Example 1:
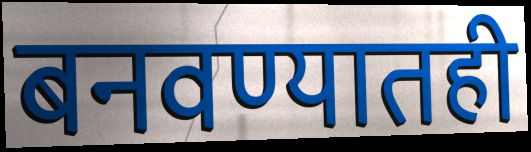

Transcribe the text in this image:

बनवण्यातही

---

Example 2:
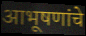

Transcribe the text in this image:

आभूषणांचे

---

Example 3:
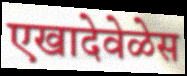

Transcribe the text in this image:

एखादेवेळेस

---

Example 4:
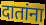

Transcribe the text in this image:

दातांना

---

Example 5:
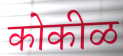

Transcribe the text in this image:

कोकीळ